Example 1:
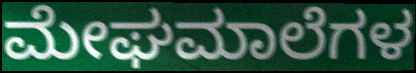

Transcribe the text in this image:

ಮೇಘಮಾಲೆಗಳ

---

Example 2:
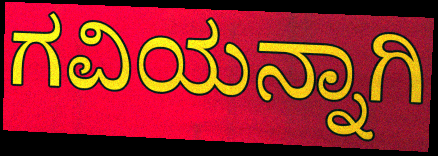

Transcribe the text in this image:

ಗವಿಯನ್ನಾಗಿ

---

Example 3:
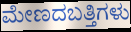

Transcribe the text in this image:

ಮೇಣದಬತ್ತಿಗಳು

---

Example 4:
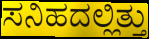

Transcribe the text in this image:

ಸನಿಹದಲ್ಲಿತ್ತು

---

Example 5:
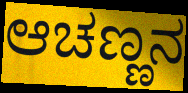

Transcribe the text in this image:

ಆಚಣ್ಣನ